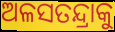
ଅଳସତନ୍ଦ୍ରାକୁ